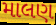
માલણ